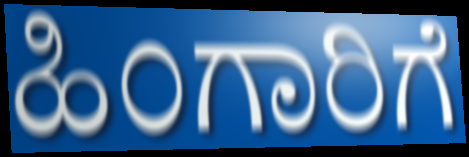
ಹಿಂಗಾರಿಗೆ